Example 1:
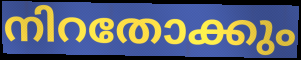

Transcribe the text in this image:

നിറതോക്കും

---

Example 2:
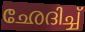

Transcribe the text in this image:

ഛേദിച്ച്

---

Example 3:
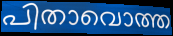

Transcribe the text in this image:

പിതാവൊത്ത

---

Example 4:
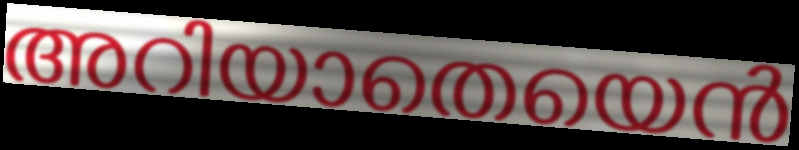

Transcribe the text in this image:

അറിയാതെയെൻ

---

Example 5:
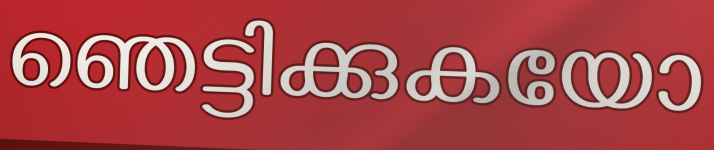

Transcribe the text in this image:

ഞെട്ടിക്കുകയോ